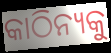
କାଠିନ୍ୟକୁ